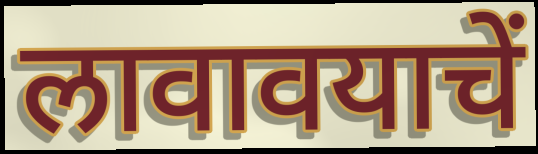
लावावयाचें